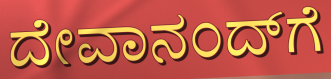
ದೇವಾನಂದ್‌ಗೆ